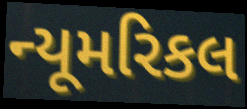
ન્યૂમરિકલ